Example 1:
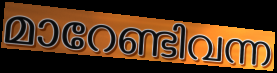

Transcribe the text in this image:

മാറേണ്ടിവന്ന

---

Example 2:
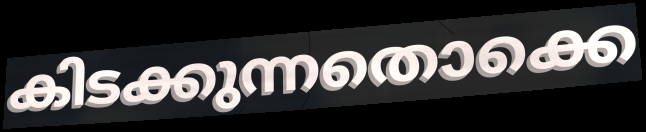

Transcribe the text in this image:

കിടക്കുന്നതൊക്കെ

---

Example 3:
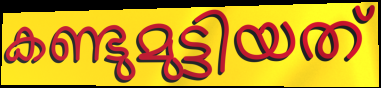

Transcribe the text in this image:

കണ്ടുമുട്ടിയത്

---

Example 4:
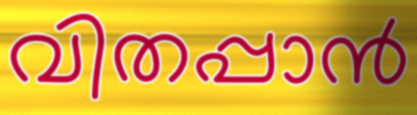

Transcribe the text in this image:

വിതപ്പാൻ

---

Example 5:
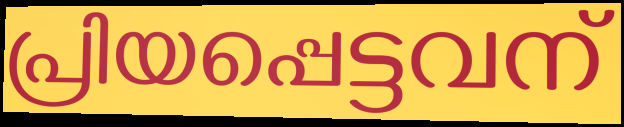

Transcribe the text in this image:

പ്രിയപ്പെട്ടവന്